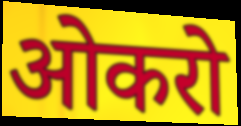
ओकरो